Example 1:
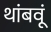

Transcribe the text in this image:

थांबवूं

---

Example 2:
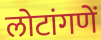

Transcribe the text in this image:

लोटांगणें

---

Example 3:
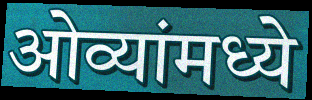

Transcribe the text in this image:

ओव्यांमध्ये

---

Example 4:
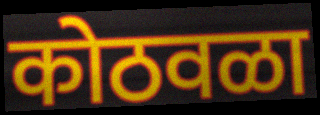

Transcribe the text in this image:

कोठवळा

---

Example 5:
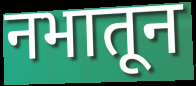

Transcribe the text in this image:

नभातून